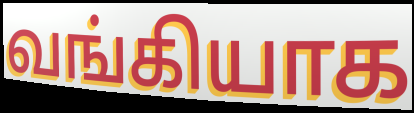
வங்கியாக